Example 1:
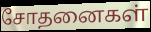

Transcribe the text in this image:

சோதனைகள்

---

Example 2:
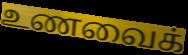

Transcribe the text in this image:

உணவைக்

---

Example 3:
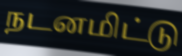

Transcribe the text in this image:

நடனமிட்டு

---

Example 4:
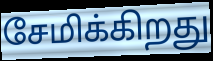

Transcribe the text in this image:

சேமிக்கிறது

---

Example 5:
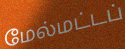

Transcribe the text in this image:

மேல்மட்டப்